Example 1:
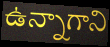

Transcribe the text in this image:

ఉన్నాగాని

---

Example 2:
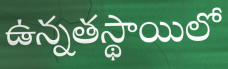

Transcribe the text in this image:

ఉన్నతస్థాయిలో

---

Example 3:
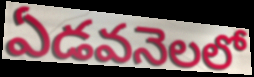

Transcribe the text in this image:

ఏడవనెలలో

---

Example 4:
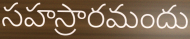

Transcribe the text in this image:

సహస్రారమందు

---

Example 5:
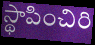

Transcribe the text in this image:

స్థాపించిరి